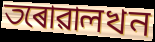
তৰোৱালখন